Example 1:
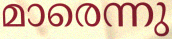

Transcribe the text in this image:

മാരെന്നു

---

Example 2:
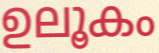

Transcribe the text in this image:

ഉലൂകം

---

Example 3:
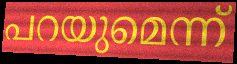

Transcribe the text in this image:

പറയുമെന്ന്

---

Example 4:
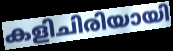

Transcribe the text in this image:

കളിചിരിയായി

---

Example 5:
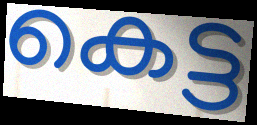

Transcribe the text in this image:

കെട്ട